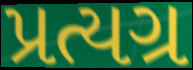
પ્રત્યગ્ર